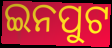
ଇନପୁଟ